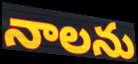
నాలను